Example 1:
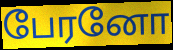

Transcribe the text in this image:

பேரனோ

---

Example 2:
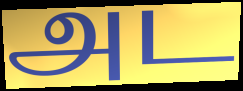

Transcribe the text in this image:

அட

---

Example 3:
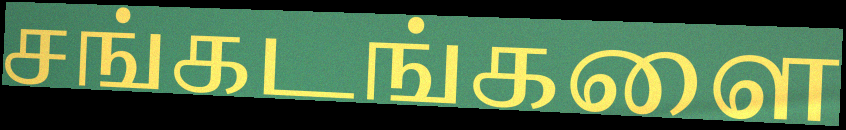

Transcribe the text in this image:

சங்கடங்களை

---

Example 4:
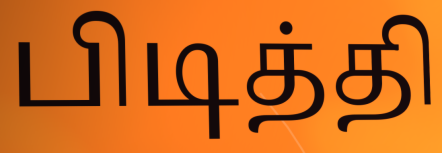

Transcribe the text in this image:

பிடித்தி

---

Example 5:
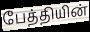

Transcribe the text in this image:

பேத்தியின்